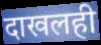
दाखलही